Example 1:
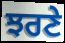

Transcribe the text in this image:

ਝਰਣੇ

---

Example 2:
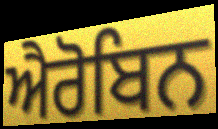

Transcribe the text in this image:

ਐਰੋਬਿਨ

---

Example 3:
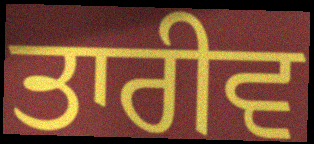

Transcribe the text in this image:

ਤਾਰੀਵ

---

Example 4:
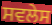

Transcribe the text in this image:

ਸਵਲੇਸ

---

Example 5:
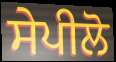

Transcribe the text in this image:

ਸੇਪੀਲੋ